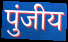
पुंजीय